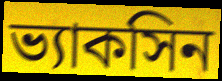
ভ্যাকসিন